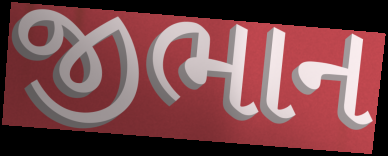
જીભાન